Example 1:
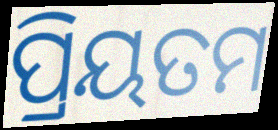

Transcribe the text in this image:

ପ୍ରିୟତମ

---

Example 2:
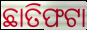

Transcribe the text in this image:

ଛାତିଫଟା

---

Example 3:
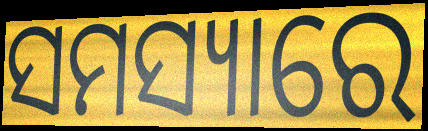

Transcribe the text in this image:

ସମସ୍ୟାରେ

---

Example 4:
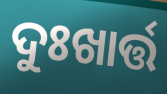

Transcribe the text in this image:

ଦୁଃଖାର୍ତ୍ତ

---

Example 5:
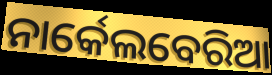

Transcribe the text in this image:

ନାର୍କେଲବେରିଆ